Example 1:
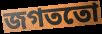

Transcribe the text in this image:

জগততো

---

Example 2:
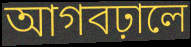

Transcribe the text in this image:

আগবঢ়ালে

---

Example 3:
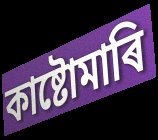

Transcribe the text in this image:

কাষ্টোমাৰি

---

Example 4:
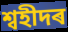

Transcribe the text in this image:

শ্বহীদৰ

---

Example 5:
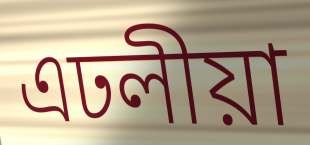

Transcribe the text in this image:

এঢলীয়া